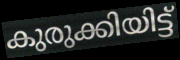
കുരുക്കിയിട്ട്